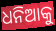
ଧନିଆକୁ